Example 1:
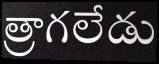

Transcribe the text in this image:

త్రాగలేడు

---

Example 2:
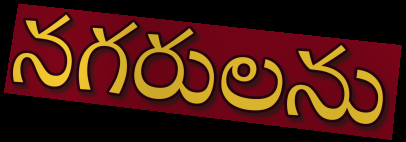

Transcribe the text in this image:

నగరులను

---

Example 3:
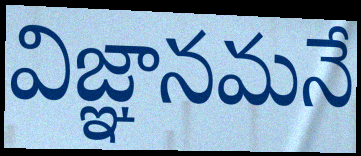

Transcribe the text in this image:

విజ్ఞానమనే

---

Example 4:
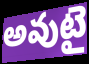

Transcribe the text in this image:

అవుటై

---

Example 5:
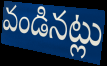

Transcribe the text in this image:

వండినట్లు